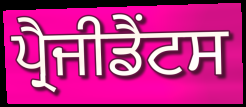
ਪ੍ਰੈਜੀਡੈਂਟਸ